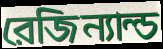
রেজিন্যাল্ড